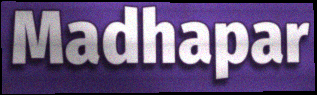
Madhapar